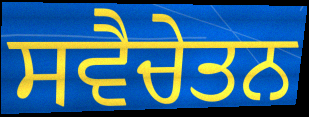
ਸਵੈਚੇਤਨ